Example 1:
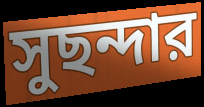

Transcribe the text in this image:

সুছন্দার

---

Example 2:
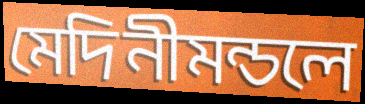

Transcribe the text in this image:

মেদিনীমন্ডলে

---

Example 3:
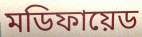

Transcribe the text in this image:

মডিফায়েড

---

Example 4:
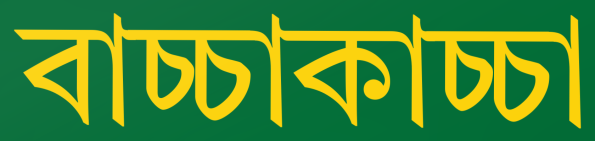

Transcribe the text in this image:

বাচ্চাকাচ্চা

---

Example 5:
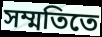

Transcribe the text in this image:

সম্মতিতে